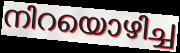
നിറയൊഴിച്ച